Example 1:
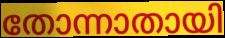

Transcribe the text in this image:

തോന്നാതായി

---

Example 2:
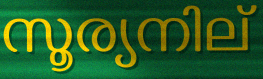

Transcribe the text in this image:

സൂര്യനില്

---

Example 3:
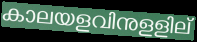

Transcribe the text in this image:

കാലയളവിനുളളില്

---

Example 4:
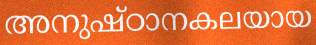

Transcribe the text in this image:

അനുഷ്ഠാനകലയായ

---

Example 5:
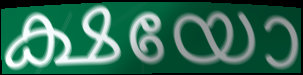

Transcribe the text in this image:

ക്ഷയോ